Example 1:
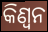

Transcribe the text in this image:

କିଣ୍ୱନ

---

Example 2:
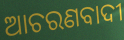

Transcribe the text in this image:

ଆଚରଣବାଦୀ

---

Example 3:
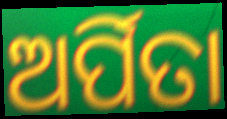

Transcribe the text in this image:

ଅର୍ପିତା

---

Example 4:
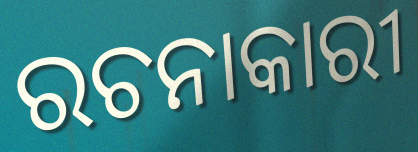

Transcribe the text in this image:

ରଚନାକାରୀ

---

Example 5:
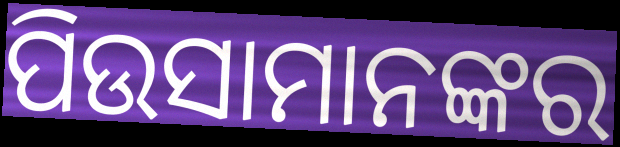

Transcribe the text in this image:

ପିଉସାମାନଙ୍କର